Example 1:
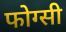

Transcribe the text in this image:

फोग्सी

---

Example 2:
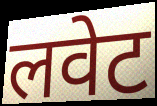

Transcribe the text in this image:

लवेट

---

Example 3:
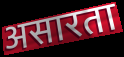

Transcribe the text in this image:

असारता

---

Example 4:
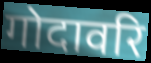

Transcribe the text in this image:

गोदावरि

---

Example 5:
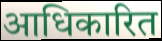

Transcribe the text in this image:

आधिकारित